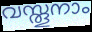
വസ്തൂനാം